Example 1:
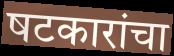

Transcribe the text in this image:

षटकारांचा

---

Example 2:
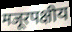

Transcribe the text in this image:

मजूरपक्षीय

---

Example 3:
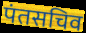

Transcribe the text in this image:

पंतसचिव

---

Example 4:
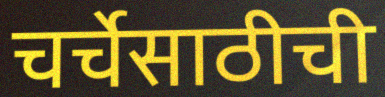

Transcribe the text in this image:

चर्चेसाठीची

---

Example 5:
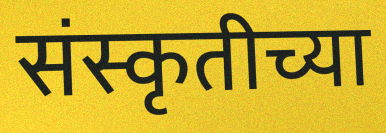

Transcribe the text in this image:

संस्कृतीच्या